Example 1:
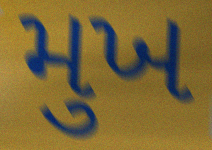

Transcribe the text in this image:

મુખ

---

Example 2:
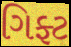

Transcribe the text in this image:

ગિફ્ટ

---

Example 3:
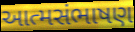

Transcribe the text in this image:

આત્મસંભાષણ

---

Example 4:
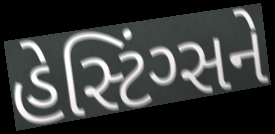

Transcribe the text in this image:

હેસ્ટિંગ્સને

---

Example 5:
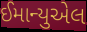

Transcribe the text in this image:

ઈમાન્યુએલ